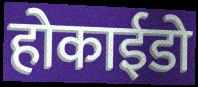
होकाईडो